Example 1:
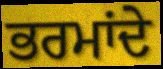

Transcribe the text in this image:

ਭਰਮਾਂਦੇ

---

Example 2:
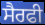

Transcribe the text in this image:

ਸੈਰਫੀ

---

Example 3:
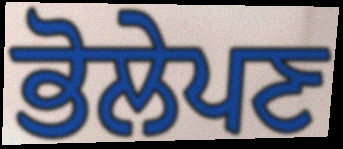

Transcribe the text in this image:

ਭੋਲੇਪਣ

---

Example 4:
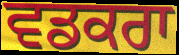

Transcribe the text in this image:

ਵਡਕਰਾ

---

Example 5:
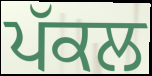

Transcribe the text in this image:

ਪੱਕਲ